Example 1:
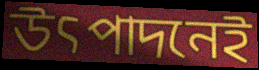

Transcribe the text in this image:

উৎপাদনেই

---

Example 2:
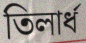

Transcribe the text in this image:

তিলার্ধ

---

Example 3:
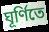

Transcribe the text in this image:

ঘূর্ণিতে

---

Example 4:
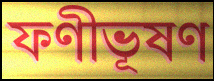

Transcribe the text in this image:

ফণীভূষণ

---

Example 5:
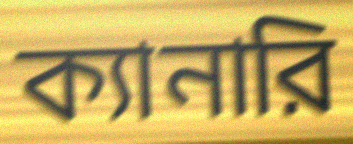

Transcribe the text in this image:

ক্যানারি